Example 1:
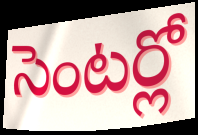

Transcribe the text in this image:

సెంటర్లో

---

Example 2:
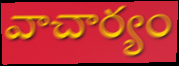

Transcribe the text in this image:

వాచార్యం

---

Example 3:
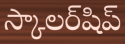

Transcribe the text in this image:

స్కాలర్‌షిప్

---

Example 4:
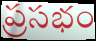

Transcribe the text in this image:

ప్రసభం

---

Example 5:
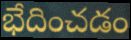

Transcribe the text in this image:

భేదించడం